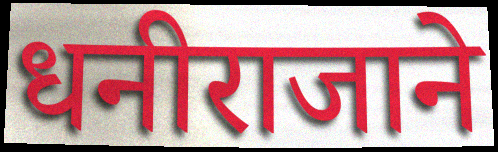
धनीराजाने